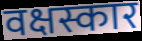
वक्षस्कार